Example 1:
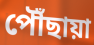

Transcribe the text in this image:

পৌঁছায়া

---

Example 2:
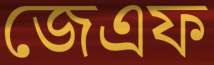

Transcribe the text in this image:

জেএফ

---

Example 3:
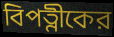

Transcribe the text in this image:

বিপত্নীকের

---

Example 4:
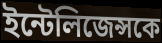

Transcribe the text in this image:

ইন্টেলিজেন্সকে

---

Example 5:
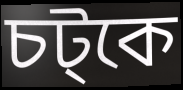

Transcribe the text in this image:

চট্‌কে